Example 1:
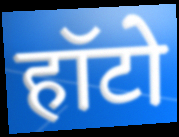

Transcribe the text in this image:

हॉटो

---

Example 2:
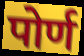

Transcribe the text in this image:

पोर्ण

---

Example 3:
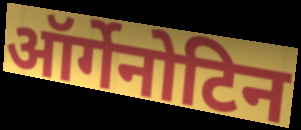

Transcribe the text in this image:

ऑर्गेनोटिन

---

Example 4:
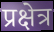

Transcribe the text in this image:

प्रक्षेत्र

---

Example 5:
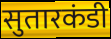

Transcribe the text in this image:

सुतारकंडी